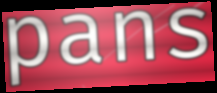
pans